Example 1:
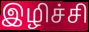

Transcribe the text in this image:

இழிச்சி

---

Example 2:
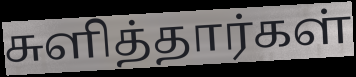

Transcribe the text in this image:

சுளித்தார்கள்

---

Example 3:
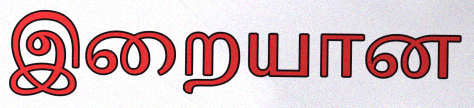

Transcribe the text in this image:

இறையான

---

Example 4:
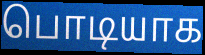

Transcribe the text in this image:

பொடியாக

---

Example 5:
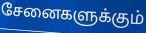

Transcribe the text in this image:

சேனைகளுக்கும்